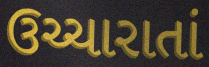
ઉચ્ચારાતાં